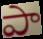
పా